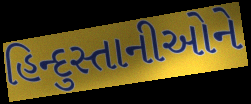
હિન્દુસ્તાનીઓને